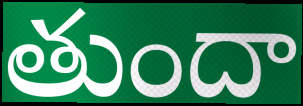
తుందా